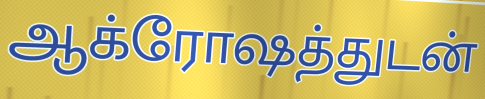
ஆக்ரோஷத்துடன்